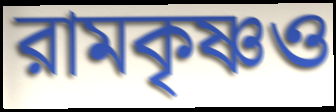
রামকৃষ্ণও